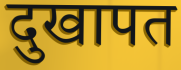
दुखापत